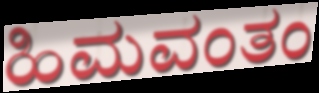
ಹಿಮವಂತಂ